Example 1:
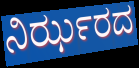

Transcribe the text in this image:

ನಿರ್ಝರದ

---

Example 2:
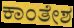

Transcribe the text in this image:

ಕಾಂತೇಶ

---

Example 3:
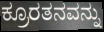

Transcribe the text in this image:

ಕ್ರೂರತನವನ್ನು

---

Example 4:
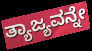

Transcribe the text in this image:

ತ್ಯಾಜ್ಯವನ್ನೇ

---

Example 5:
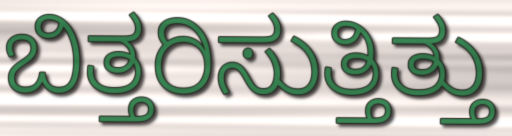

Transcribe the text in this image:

ಬಿತ್ತರಿಸುತ್ತಿತ್ತು